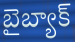
బైబ్యాక్